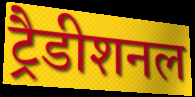
ट्रैडीशनल